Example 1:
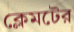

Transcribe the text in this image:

ক্লেমটের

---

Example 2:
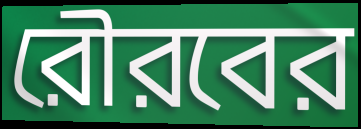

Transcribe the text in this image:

রৌরবের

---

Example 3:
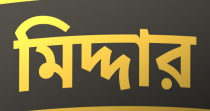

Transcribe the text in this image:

মিদ্দার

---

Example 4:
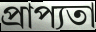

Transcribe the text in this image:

প্রাপ্যতা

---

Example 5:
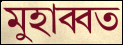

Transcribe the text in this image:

মুহাব্বত